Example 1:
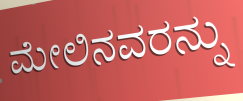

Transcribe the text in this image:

ಮೇಲಿನವರನ್ನು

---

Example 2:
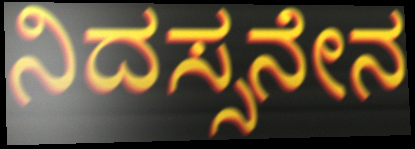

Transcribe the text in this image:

ನಿದಸ್ಸನೇನ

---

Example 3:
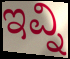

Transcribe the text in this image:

ಇವ್ನಿ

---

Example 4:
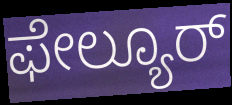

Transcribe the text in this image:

ಫೇಲ್ಯೂರ್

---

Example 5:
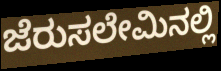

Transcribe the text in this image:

ಜೆರುಸಲೇಮಿನಲ್ಲಿ